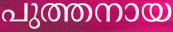
പുത്തനായ